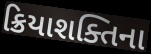
ક્રિયાશક્તિના